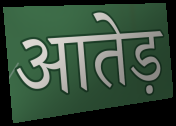
आतेड़